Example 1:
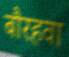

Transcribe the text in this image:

बौरहवा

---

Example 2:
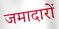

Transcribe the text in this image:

जमादारों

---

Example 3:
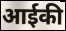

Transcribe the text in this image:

आईकी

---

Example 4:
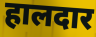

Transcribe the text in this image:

हालदार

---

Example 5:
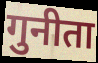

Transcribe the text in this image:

गुनीता